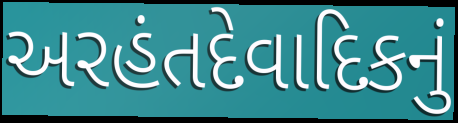
અરહંતદેવાદિકનું